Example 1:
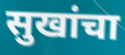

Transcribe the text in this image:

सुखांचा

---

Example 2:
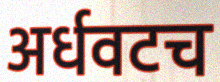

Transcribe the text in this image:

अर्धवटच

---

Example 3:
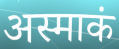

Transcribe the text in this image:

अस्माकं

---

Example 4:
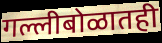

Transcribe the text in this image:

गल्लीबोळातही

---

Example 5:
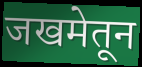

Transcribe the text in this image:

जखमेतून